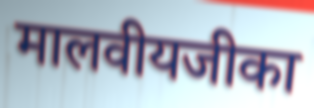
मालवीयजीका